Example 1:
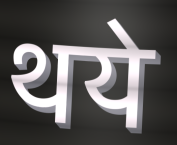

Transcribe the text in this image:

थये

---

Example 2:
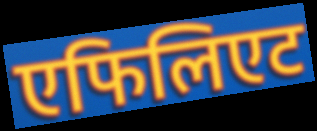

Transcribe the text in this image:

एफिलिएट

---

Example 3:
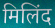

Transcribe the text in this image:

मिलिंद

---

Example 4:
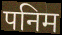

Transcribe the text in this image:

पनिम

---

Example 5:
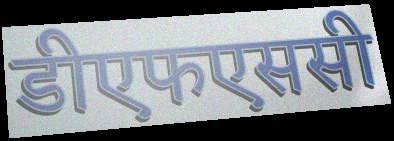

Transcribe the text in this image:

डीएफएससी